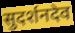
सुदर्शनदेव